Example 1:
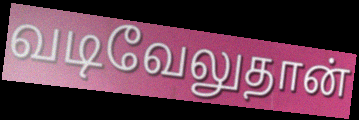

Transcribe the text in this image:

வடிவேலுதான்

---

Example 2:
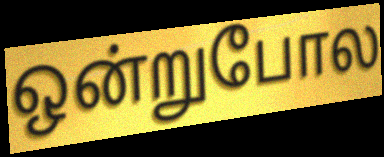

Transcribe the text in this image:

ஒன்றுபோல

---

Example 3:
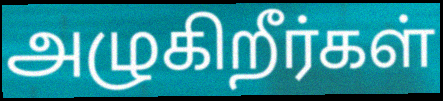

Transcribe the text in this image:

அழுகிறீர்கள்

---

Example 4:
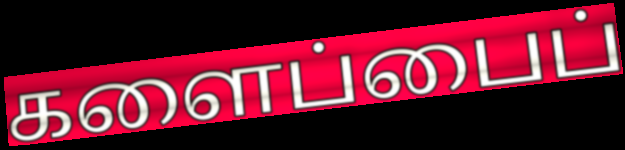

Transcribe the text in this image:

களைப்பைப்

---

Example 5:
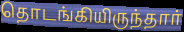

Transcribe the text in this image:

தொடங்கியிருந்தார்